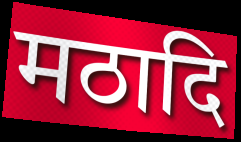
मठादि